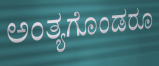
ಅಂತ್ಯಗೊಂಡರೂ